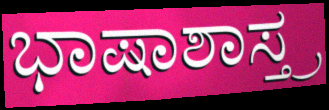
ಭಾಷಾಶಾಸ್ತ್ರ